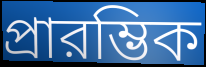
প্রারম্ভিক